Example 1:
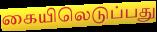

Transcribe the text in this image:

கையிலெடுப்பது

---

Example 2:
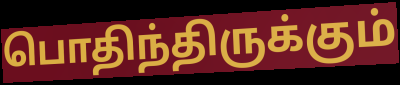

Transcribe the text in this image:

பொதிந்திருக்கும்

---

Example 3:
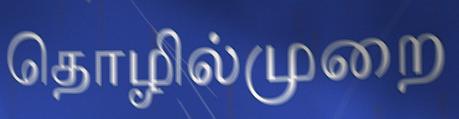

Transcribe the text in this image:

தொழில்முறை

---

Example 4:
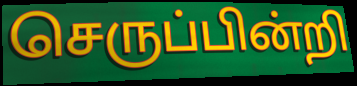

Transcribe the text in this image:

செருப்பின்றி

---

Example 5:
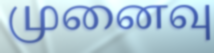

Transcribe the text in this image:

முனைவு